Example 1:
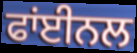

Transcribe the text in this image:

ਫਾਂਈਨਲ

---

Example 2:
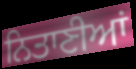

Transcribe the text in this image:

ਨਿਤਾਣੀਆਂ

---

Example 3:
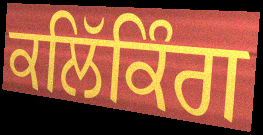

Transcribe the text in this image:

ਕਲਿੱਕਿੰਗ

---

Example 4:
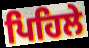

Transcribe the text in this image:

ਪਿਹਿਲੇ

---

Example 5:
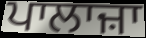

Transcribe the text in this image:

ਪਾਲਾਜ਼ਾ